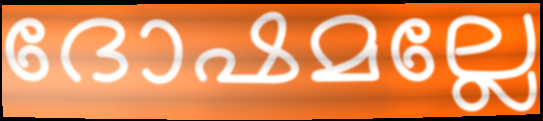
ദോഷമല്ലേ